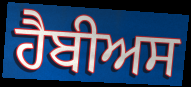
ਹੈਬੀਅਸ